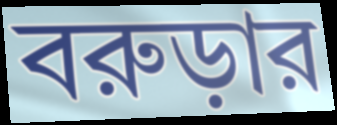
বরুড়ার